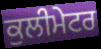
ਕੁਲੀਮੇਟਰ